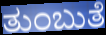
ತುಂಬುತೆ